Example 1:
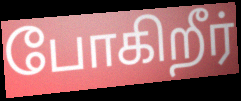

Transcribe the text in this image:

போகிறீர்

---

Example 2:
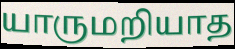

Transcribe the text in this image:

யாருமறியாத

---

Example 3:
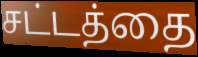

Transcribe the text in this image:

சட்டத்தை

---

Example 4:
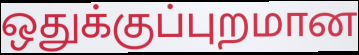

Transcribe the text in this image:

ஒதுக்குப்புறமான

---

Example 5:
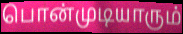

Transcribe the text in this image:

பொன்முடியாரும்